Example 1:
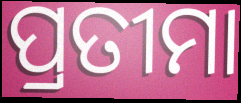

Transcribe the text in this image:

ପ୍ରତୀମା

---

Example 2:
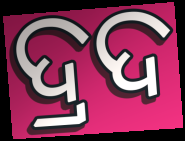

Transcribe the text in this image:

ଦ୍ରଦ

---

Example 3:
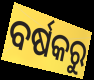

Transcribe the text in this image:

ବର୍ଷକରୁ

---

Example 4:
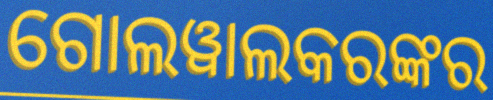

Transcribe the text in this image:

ଗୋଲୱାଲକରଙ୍କର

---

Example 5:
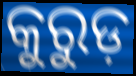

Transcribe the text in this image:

କୁରୁଡ଼